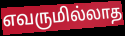
எவருமில்லாத